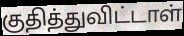
குதித்துவிட்டாள்